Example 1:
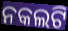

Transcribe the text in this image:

ନକଲଟି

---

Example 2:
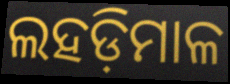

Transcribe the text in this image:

ଲହଡ଼ିମାଳ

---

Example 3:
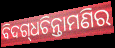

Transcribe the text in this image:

ବିଦଗ୍‌ଧଚିନ୍ତାମଣିର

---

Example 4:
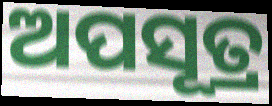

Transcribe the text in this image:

ଅପସୂତ୍ର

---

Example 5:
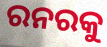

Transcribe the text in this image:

ରନରକୁ